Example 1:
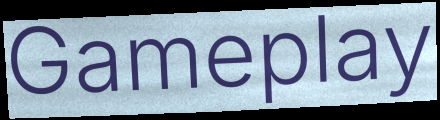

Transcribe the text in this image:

Gameplay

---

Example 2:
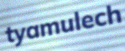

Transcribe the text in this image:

tyamulech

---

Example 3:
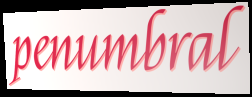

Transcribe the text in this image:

penumbral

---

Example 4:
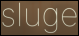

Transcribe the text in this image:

sluge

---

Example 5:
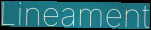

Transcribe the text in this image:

Lineament